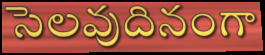
సెలవుదినంగా